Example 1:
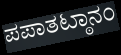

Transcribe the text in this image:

ಪಪಾತಟ್ಠಾನಂ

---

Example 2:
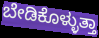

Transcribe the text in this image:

ಬೇಡಿಕೊಳ್ಳುತ್ತಾ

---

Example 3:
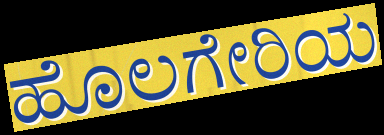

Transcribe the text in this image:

ಹೊಲಗೇರಿಯ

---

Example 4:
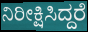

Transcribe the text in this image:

ನಿರೀಕ್ಷಿಸಿದ್ದರೆ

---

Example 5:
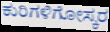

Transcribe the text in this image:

ಕುರಿಗಳಿಗೋಸ್ಕರ